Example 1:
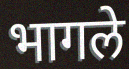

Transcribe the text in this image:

भागले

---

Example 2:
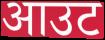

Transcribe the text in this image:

आउट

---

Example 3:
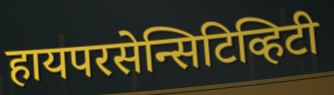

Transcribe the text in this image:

हायपरसेन्सिटिव्हिटी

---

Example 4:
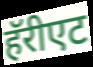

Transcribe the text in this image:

हॅरीएट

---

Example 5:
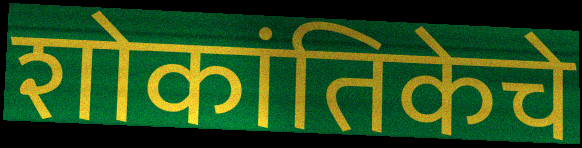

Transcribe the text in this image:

शोकांतिकेचे